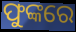
ଫୁଙ୍କରେ